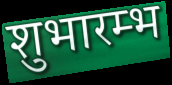
शुभारम्भ